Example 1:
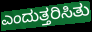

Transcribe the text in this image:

ಎಂದುತ್ತರಿಸಿತು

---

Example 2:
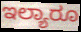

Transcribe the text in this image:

ಇಲ್ಯಾರೂ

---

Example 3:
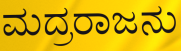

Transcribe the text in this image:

ಮದ್ರರಾಜನು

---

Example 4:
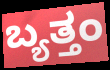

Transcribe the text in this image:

ಬ್ಯತ್ತಂ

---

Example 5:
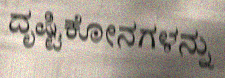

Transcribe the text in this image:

ದೃಷ್ಟಿಕೋನಗಳನ್ನು